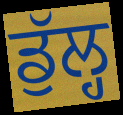
ਡੁੱਲ੍ਹ